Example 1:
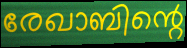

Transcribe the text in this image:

രേഖാബിന്റെ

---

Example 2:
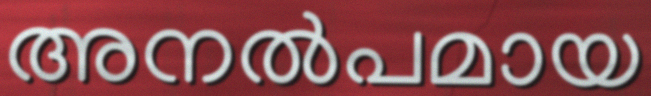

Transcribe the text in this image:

അനൽപമായ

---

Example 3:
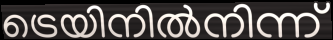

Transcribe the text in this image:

ട്രെയിനിൽനിന്ന്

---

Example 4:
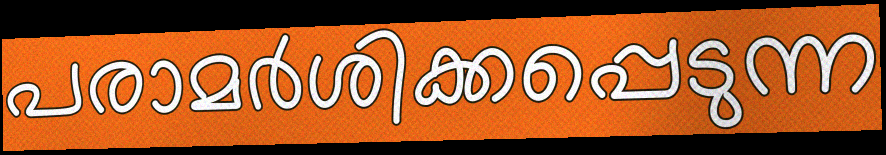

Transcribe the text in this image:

പരാമർശിക്കപ്പെടുന്ന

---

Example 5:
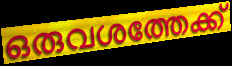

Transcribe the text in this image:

ഒരുവശത്തേക്ക്